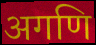
अगणि